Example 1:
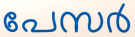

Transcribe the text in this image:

പേസർ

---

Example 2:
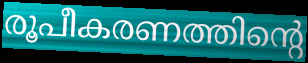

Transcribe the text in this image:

രൂപീകരണത്തിന്റെ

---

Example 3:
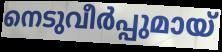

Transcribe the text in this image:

നെടുവീർപ്പുമായ്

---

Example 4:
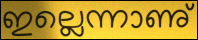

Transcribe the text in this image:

ഇല്ലെന്നാണു്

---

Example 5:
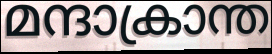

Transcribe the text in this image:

മന്ദാക്രാന്ത